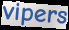
vipers